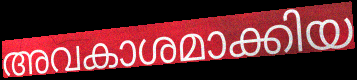
അവകാശമാക്കിയ